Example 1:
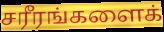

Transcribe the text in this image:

சரீரங்களைக்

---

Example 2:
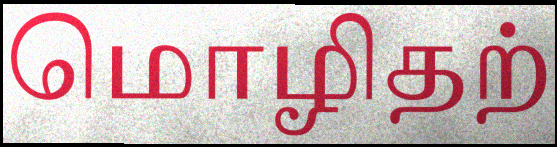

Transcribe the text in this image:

மொழிதற்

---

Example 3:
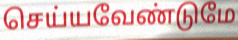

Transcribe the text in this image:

செய்யவேண்டுமே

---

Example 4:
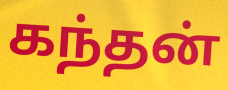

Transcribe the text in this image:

கந்தன்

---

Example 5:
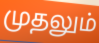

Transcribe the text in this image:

முதலும்